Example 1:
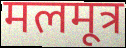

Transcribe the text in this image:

मलमूत्र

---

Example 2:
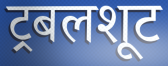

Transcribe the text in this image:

ट्रबलशूट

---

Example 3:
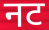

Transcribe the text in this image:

नट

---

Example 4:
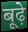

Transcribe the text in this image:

बूढ़े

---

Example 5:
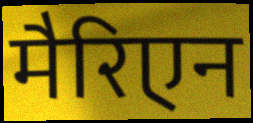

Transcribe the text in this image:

मैरिएन